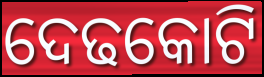
ଦେଢକୋଟି